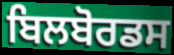
ਬਿਲਬੋਰਡਸ